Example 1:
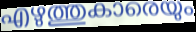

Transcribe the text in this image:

എഴുത്തുകാരെയും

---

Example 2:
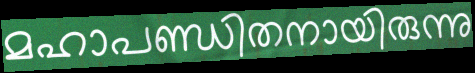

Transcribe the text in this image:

മഹാപണ്ഡിതനായിരുന്നു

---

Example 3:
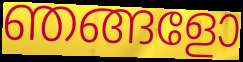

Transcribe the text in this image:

ഞങ്ങളോ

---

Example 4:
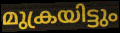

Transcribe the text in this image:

മുക്രയിട്ടും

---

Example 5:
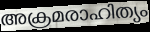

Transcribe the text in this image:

അക്രമരാഹിത്യം